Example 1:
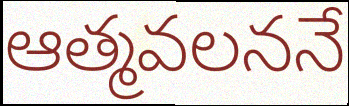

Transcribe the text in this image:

ఆత్మవలననే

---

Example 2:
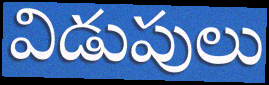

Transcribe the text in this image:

విడుపులు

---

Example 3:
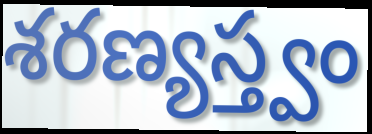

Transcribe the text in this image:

శరణ్యస్త్వం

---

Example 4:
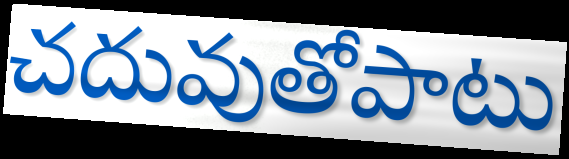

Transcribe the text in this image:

చదువుతోపాటు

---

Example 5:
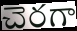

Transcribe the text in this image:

చెరగా